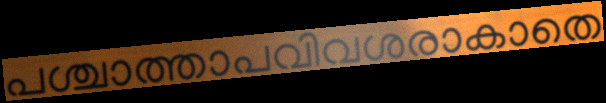
പശ്ചാത്താപവിവശരാകാതെ